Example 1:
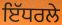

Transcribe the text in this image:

ਇੱਧਰਲੇ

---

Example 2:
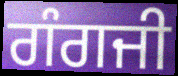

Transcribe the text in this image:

ਗੰਗਜੀ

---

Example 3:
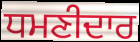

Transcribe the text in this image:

ਧਮਣੀਦਾਰ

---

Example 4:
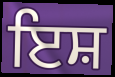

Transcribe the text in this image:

ਇਸ਼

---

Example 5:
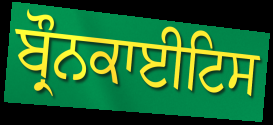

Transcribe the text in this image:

ਬ੍ਰੌਨਕਾਈਟਿਸ